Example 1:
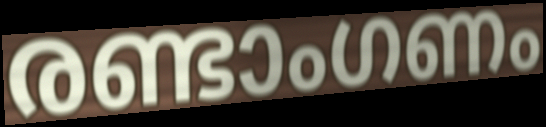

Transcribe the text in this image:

രണ്ടാംഗണം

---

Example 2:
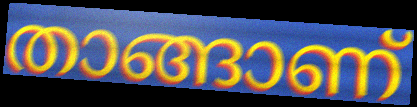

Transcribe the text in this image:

താങ്ങാണ്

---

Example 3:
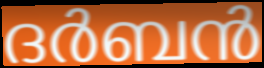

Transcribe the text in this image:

ദർബൻ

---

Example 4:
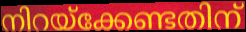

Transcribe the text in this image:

നിറയ്ക്കേണ്ടതിന്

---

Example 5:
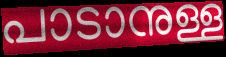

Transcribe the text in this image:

പാടാനുള്ള